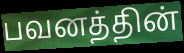
பவனத்தின்